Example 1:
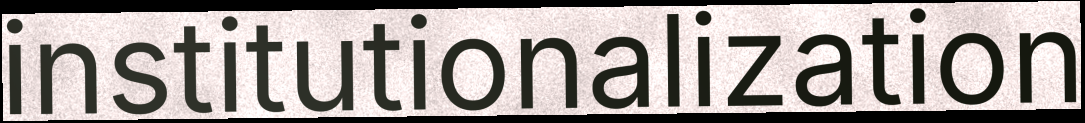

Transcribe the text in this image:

institutionalization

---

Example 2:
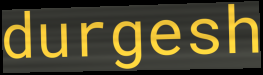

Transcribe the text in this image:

durgesh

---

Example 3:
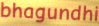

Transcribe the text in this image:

bhagundhi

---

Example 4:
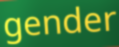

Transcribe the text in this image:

gender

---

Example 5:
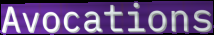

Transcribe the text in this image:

Avocations